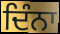
ਦਿੰਨਾ